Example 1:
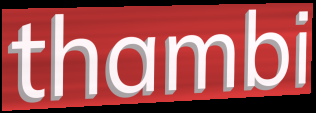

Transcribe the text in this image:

thambi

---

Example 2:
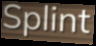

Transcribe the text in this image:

Splint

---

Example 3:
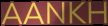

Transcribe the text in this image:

AANKH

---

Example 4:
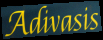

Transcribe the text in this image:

Adivasis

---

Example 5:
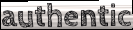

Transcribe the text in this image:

authentic